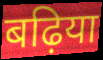
बढ़िया